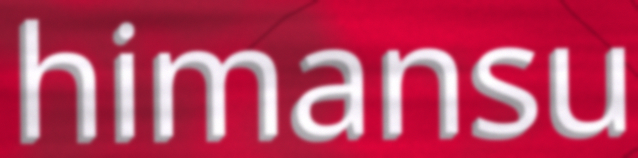
himansu